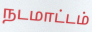
நடமாட்டம்